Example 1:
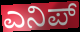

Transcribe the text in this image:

ಎನಿಪ್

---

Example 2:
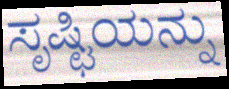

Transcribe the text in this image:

ಸೃಷ್ಟಿಯನ್ನು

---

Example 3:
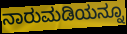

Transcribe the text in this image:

ನಾರುಮಡಿಯನ್ನೂ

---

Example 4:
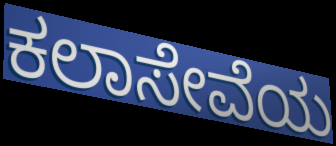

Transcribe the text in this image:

ಕಲಾಸೇವೆಯ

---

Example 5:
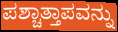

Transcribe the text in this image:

ಪಶ್ಚಾತ್ತಾಪವನ್ನು